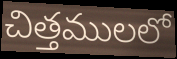
చిత్తములలో